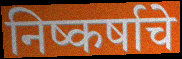
निष्कर्षाचे